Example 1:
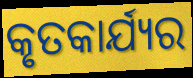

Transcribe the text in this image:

କୃତକାର୍ଯ୍ୟର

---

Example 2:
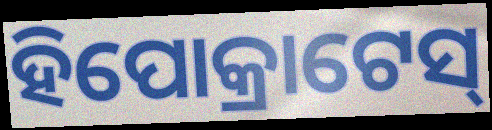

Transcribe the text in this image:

ହିପୋକ୍ରାଟେସ୍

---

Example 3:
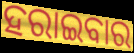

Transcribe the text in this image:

ହରାଇବାର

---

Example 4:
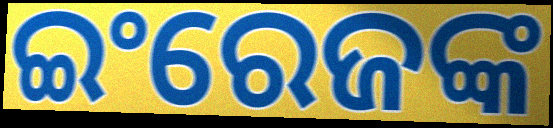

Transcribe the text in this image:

ଇଂରେଜଙ୍କ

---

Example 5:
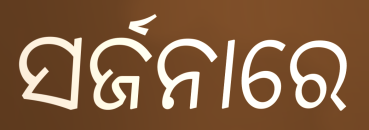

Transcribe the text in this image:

ସର୍ଜନାରେ